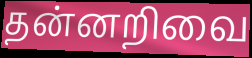
தன்னறிவை